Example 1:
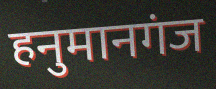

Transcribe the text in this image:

हनुमानगंज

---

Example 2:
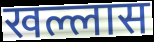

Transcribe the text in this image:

खल्लास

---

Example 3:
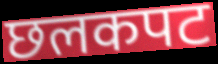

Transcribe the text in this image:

छलकपट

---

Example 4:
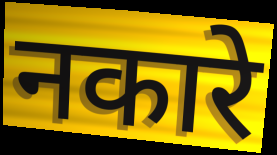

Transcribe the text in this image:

नकारे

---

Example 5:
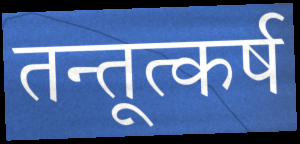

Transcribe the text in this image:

तन्तूत्कर्ष